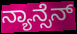
ನ್ಯಾನ್ಸೆನ್